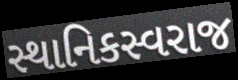
સ્થાનિકસ્વરાજ